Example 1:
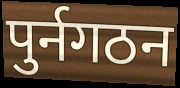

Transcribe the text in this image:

पुर्नगठन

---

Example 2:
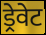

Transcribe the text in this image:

ड्रेवेट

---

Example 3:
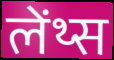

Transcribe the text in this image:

लेंथ्स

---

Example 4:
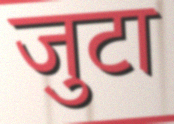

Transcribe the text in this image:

जुटा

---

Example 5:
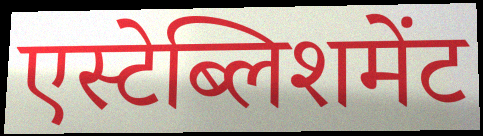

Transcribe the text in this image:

एस्टेब्लिशमेंट